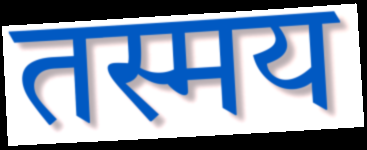
तस्मय